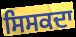
ਸਿਸਕਦਾ